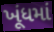
ખૂંધમાં